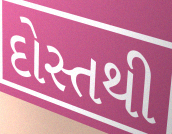
દોસ્તથી